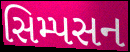
સિમ્પસન